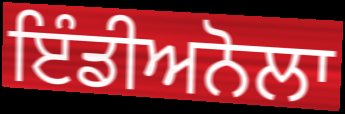
ਇੰਡੀਅਨੋਲਾ